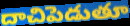
దాచిపెడుతూ